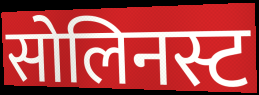
सोलिनस्ट